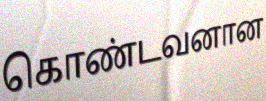
கொண்டவனான